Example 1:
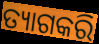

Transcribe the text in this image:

ତ୍ଯାଗକରି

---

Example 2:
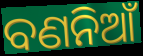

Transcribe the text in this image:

ବଣନିଆଁ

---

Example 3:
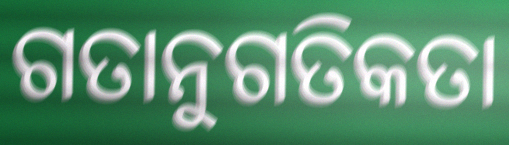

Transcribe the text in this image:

ଗତାନୁଗତିକତା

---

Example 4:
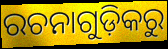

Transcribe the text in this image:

ରଚନାଗୁଡ଼ିକରୁ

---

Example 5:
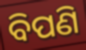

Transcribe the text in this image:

ବିପଣି